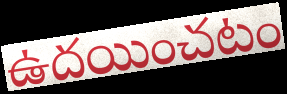
ఉదయించటం